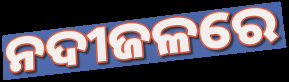
ନଦୀଜଳରେ